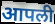
आपली